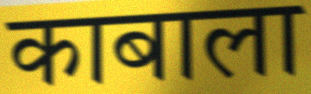
काबाला